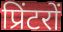
प्रिंटरों